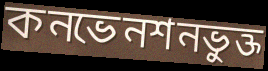
কনভেনশনভুক্ত